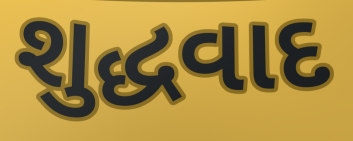
શુદ્ધવાદ